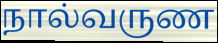
நால்வருண